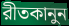
রীতকানুন